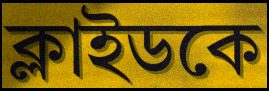
ক্লাইডকে